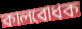
কালবোধক